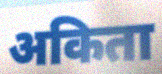
अकिता